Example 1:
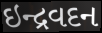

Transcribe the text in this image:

ઇન્દ્રવદન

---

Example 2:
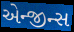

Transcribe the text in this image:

એન્જીન્સ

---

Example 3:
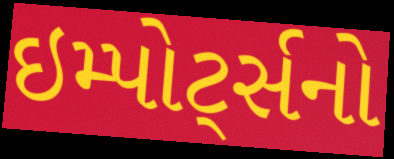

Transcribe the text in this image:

ઇમ્પોર્ટ્સનો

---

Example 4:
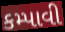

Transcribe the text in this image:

કમ્પાવી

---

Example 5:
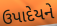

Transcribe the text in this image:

ઉપાદેયને